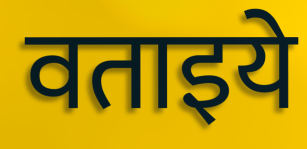
वताइये